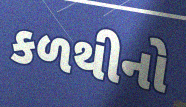
કળથીનો